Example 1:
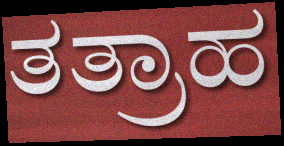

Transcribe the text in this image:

ತತ್ರಾಹ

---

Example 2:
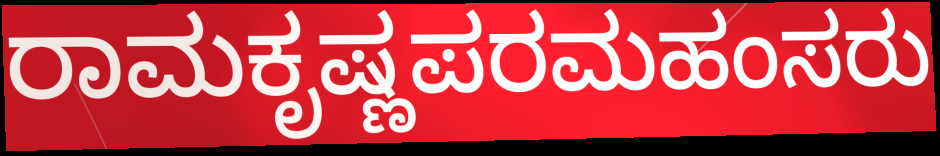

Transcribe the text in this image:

ರಾಮಕೃಷ್ಣಪರಮಹಂಸರು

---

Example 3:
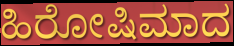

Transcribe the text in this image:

ಹಿರೋಷಿಮಾದ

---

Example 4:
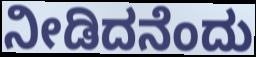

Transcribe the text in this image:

ನೀಡಿದನೆಂದು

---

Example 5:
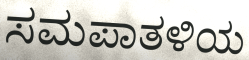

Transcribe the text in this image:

ಸಮಪಾತಳಿಯ